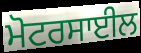
ਮੋਟਰਸਾਈਲ